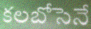
కలబోసెనే